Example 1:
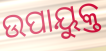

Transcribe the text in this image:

ଉପାୟୁକ୍ତ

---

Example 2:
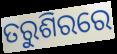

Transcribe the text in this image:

ତରୁଶିରରେ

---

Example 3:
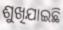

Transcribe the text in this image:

ଶୁଖିଯାଇଛି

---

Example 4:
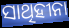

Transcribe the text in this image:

ସାଥିହୀନା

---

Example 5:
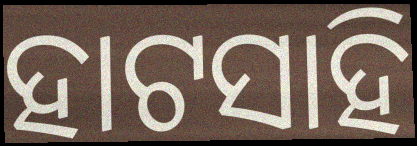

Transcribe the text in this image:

ହାଟସାହି